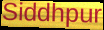
Siddhpur